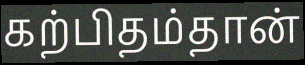
கற்பிதம்தான்